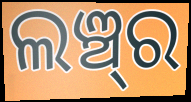
ଲଞ୍ଚ୍‍ର